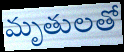
మృతులతో